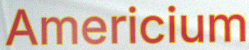
Americium